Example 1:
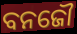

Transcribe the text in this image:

ବନଜୌ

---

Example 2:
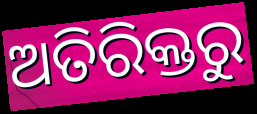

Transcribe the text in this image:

ଅତିରିକ୍ତରୁ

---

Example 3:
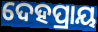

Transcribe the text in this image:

ଦେହପ୍ରାୟ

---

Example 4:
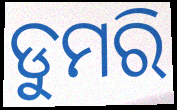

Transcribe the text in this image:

ଡୁମରି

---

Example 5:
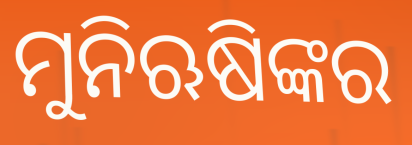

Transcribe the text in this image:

ମୁନିଋଷିଙ୍କର